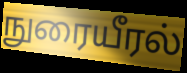
நுரையீரல்